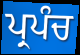
ਪ੍ਰਪੰਚ